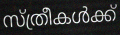
സ്ത്രീകൾക്ക്